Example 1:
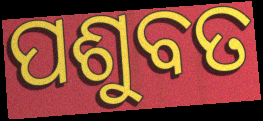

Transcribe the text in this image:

ପଶୁବତ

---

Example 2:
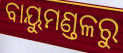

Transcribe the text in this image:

ବାୟୁମଣ୍ଡଳରୁ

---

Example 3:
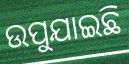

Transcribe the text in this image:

ଉପୁଯାଇଛି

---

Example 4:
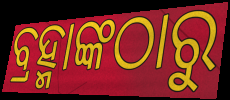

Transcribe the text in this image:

ବ୍ରହ୍ମାଙ୍କଠାରୁ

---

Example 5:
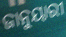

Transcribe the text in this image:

ଜାନୁୟାରୀ